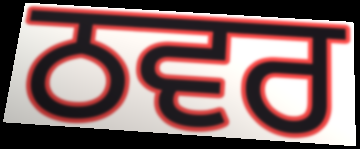
ਠਵਰ